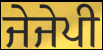
ਜੇਜੇਪੀ